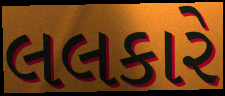
લલકારે